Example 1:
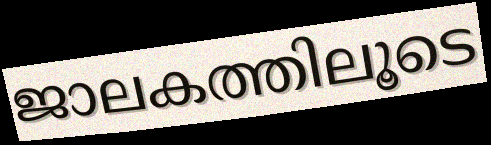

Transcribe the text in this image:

ജാലകത്തിലൂടെ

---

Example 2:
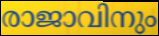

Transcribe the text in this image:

രാജാവിനും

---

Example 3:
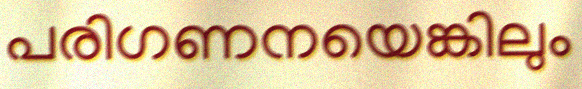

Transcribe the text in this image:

പരിഗണനയെങ്കിലും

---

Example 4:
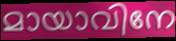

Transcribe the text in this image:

മായാവിനേ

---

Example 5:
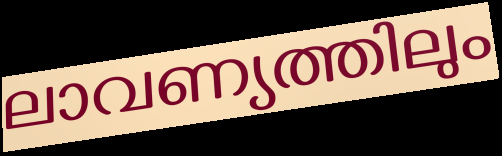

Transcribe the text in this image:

ലാവണ്യത്തിലും